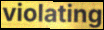
violating